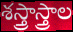
శస్త్రాస్త్రాల